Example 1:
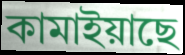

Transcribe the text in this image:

কামাইয়াছে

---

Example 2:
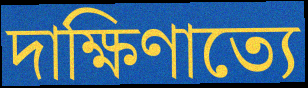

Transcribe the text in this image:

দাক্ষিণাত্যে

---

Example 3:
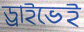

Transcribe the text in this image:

ড্রাইভেই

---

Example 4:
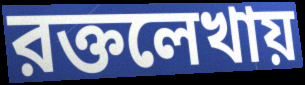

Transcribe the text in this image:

রক্তলেখায়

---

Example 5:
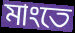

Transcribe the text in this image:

মাংতে